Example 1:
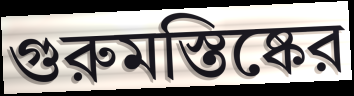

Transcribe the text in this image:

গুরুমস্তিষ্কের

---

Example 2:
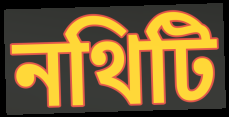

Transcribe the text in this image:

নথিটি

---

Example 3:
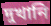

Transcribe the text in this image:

দুখানি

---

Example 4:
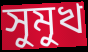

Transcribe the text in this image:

সুমুখ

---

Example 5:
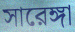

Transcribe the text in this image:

সারেঙ্গা